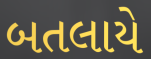
બતલાયે